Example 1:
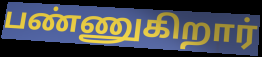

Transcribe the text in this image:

பண்ணுகிறார்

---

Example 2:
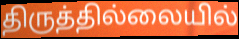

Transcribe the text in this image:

திருத்தில்லையில்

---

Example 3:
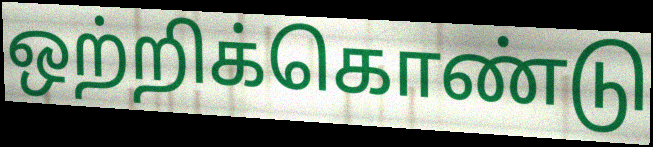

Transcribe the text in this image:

ஒற்றிக்கொண்டு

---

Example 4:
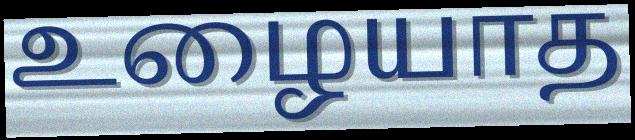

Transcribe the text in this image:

உழையாத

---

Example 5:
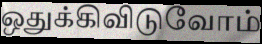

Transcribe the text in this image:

ஒதுக்கிவிடுவோம்